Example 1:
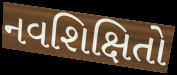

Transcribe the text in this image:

નવશિક્ષિતો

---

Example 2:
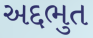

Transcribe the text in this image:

અદ્દભુત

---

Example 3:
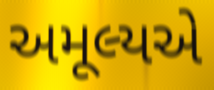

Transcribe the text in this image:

અમૂલ્યએ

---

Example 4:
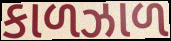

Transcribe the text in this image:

કાળઝાળ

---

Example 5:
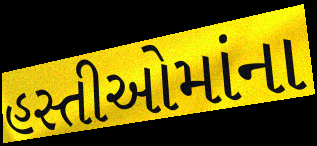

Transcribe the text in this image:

હસ્તીઓમાંના